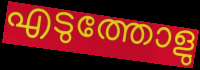
എടുത്തോളു